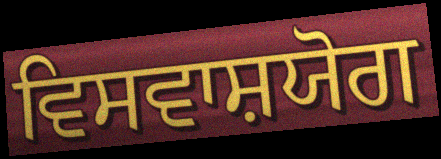
ਵਿਸਵਾਸ਼ਯੋਗ